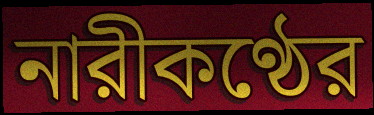
নারীকণ্ঠের